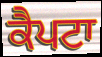
ਕੈਪਟਾ